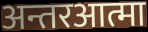
अन्तरआत्मा